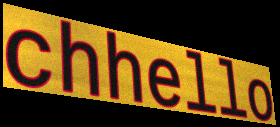
chhello